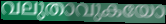
വലുതാവുകയോ